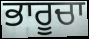
ਭਾਰੂਚਾ